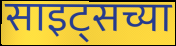
साइट्सच्या